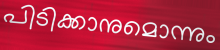
പിടിക്കാനുമൊന്നും